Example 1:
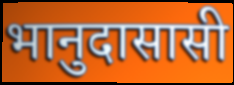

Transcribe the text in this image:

भानुदासासी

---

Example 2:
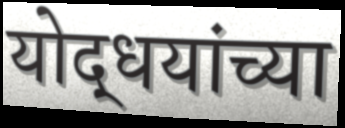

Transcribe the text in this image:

योद्धयांच्या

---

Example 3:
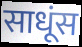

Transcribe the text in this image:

साधूंस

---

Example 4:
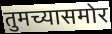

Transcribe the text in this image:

तुमच्यासमोर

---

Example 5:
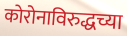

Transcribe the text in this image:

कोरोनाविरुद्धच्या